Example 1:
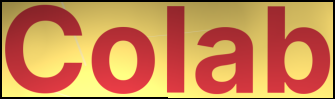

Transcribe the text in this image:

Colab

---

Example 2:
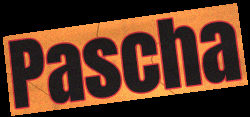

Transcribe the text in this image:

Pascha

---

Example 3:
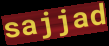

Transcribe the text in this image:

sajjad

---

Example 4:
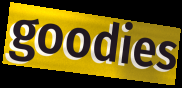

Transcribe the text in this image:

goodies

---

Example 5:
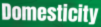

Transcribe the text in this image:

Domesticity